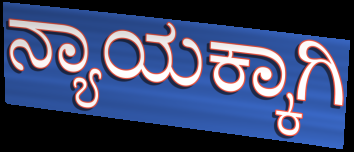
ನ್ಯಾಯಕ್ಕಾಗಿ